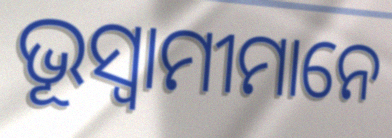
ଭୂସ୍ୱାମୀମାନେ